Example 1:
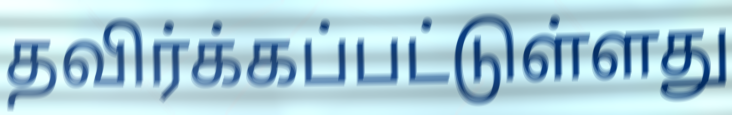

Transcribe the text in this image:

தவிர்க்கப்பட்டுள்ளது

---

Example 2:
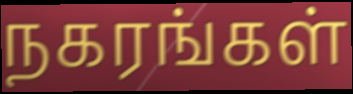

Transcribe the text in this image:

நகரங்கள்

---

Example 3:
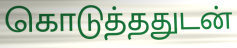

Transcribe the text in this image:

கொடுத்ததுடன்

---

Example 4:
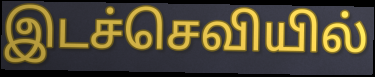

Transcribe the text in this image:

இடச்செவியில்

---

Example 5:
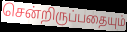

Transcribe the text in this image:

சென்றிருப்பதையும்